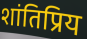
शांतिप्रिय